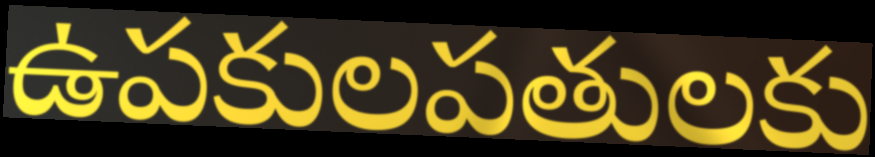
ఉపకులపతులకు